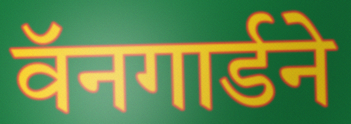
वॅनगार्डने